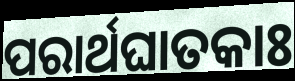
ପରାର୍ଥଘାତକାଃ